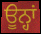
ਊਨ੍ਹਾਂ